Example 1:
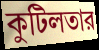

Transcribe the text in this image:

কুটিলতার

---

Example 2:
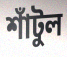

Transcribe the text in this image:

শাঁটুল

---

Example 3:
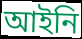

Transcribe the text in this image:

আইনি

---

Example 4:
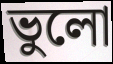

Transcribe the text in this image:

ভুলো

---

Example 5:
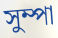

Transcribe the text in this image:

সুম্পা